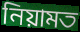
নিয়ামত